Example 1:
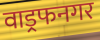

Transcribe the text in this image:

वाड्रफनगर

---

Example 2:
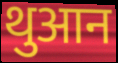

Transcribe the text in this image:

थुआन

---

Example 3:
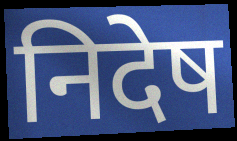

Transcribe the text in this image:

निदेष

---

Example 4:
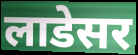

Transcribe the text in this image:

लाडेसर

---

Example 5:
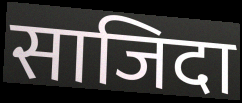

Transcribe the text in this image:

साजिदा